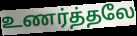
உணர்த்தலே